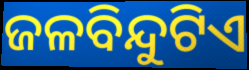
ଜଳବିନ୍ଦୁଟିଏ